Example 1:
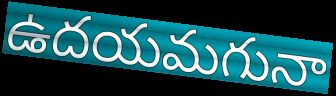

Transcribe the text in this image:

ఉదయమగునా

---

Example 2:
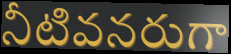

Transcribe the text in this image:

నీటివనరుగా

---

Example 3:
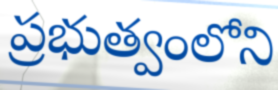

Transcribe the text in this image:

ప్రభుత్వంలోని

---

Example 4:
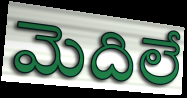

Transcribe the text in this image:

మెదిలే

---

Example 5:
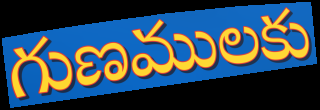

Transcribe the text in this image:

గుణములకు